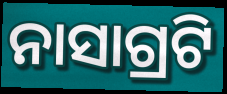
ନାସାଗ୍ରଟି